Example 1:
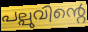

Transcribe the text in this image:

പല്പുവിന്റെ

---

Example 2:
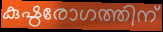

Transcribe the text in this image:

കുഷ്ഠരോഗത്തിന്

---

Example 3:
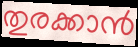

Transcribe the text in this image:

തുരക്കാൻ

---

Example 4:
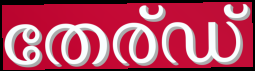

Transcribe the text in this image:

തേര്ഡ്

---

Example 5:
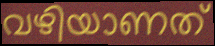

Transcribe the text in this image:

വഴിയാണത്